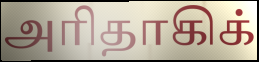
அரிதாகிக்